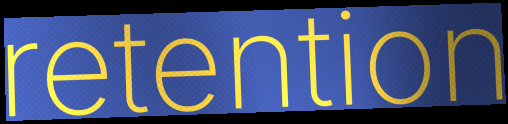
retention